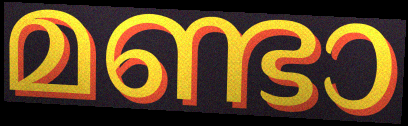
മണ്ടാ